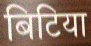
बिटिया